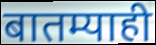
बातम्याही